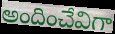
అందించేవిగా